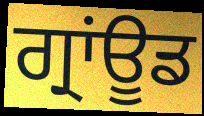
ਗ੍ਰਾਂਊਡ